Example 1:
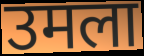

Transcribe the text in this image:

उमला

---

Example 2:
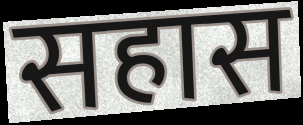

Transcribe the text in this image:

सहास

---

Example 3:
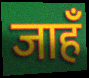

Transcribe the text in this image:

जाहँ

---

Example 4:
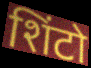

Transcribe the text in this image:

शिंटो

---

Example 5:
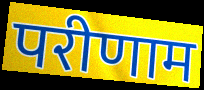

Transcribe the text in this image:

परीणाम